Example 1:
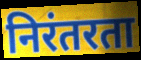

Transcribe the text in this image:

निरंतरता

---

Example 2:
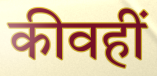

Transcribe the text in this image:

कीवहीं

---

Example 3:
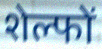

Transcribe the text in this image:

शेल्फों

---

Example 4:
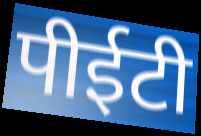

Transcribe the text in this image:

पीईटी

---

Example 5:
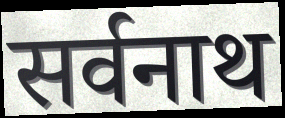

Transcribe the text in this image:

सर्वनाथ